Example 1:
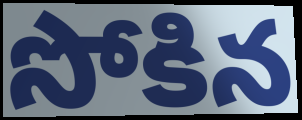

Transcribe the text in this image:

సోకిన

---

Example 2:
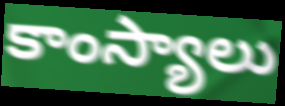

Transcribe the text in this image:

కాంస్యాలు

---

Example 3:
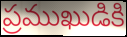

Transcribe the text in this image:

ప్రముఖుడికి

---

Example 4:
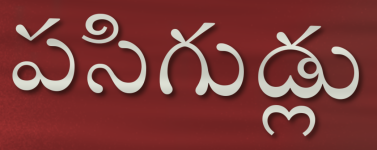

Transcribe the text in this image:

పసిగుడ్లు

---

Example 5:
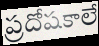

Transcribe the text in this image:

ప్రదోషకాలే